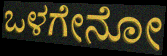
ಒಳಗೇನೋ